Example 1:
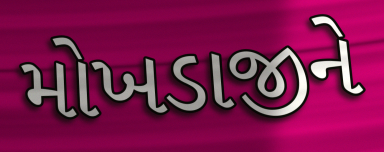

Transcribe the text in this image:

મોખડાજીને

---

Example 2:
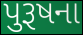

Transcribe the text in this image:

પુરૂષના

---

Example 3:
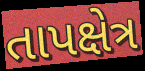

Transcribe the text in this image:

તાપક્ષેત્ર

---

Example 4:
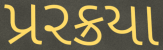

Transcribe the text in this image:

પ્રરક્રયા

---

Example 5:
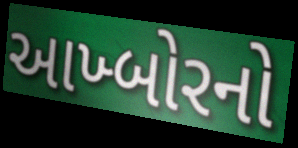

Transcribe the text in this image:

આખ્બોરનો